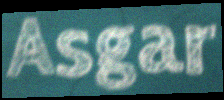
Asgar